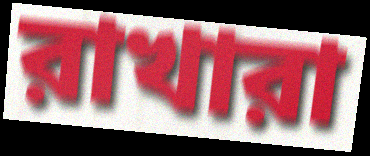
রাখারা